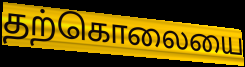
தற்கொலையை